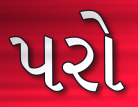
પરો